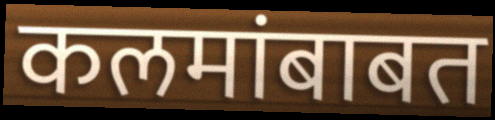
कलमांबाबत